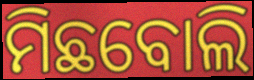
ମିଛବୋଲି